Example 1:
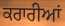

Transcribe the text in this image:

ਕਰਾਰੀਆਂ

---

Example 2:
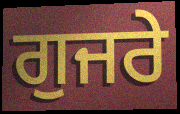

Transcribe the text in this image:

ਗੁਜਰੇ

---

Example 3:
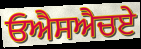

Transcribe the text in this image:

ਓਐਸਐਚਏ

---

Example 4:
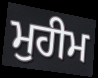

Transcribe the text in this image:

ਮੁਹੀਮ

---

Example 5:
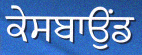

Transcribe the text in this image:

ਕੇਸਬਾਉਂਡ